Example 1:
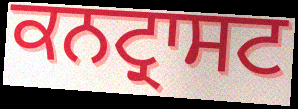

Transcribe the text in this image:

ਕਨਟ੍ਰਾਸਟ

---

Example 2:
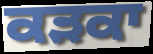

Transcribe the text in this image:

ਕੜਕਾ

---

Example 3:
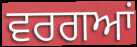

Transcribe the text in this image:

ਵਰਗਆਂ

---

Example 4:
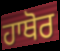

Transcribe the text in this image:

ਹਾਥੋਰ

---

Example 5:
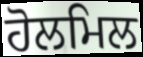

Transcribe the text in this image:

ਹੋਲਮਿਲ